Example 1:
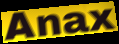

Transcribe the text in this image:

Anax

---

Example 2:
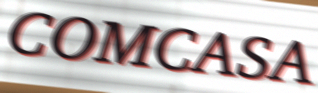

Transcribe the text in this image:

COMCASA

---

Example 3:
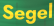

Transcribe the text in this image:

Segel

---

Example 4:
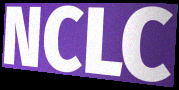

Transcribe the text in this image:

NCLC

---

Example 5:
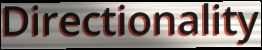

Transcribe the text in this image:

Directionality